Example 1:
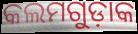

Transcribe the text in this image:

କଲମଗୁଡ଼ାକ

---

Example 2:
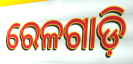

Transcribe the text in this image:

ରେଳଗାଡ଼ି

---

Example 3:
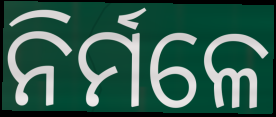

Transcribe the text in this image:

ନିର୍ମଳେ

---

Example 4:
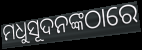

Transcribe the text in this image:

ମଧୁସୂଦନଙ୍କଠାରେ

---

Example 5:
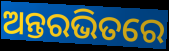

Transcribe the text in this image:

ଅନ୍ତରଭିତରେ